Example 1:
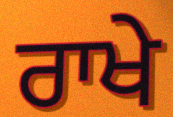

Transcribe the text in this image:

ਰਾਖੇ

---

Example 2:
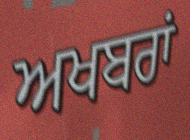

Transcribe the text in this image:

ਅਖਬਰਾਂ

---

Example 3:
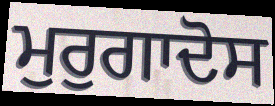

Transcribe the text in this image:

ਮੁਰੁਗਾਦੋਸ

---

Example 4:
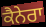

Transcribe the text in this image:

ਕੈਨੇਰਾ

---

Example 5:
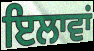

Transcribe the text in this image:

ਇਲਾਵਾਂ